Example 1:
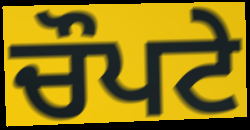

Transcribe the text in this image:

ਚੌਪਟੇ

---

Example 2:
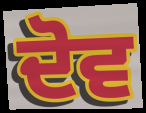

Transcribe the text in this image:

ਦੋਵ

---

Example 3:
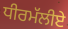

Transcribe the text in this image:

ਧੀਰਮੱਲੀਏ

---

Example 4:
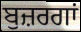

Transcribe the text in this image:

ਬੁਜ਼ਰਗਾਂ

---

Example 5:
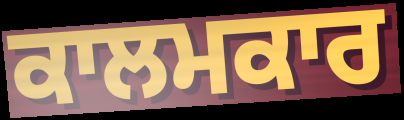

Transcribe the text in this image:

ਕਾਲਮਕਾਰ